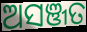
ଅସଞ୍ଜତ